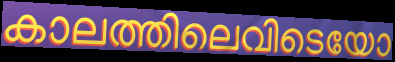
കാലത്തിലെവിടെയോ